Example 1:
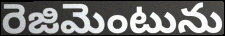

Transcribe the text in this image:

రెజిమెంటును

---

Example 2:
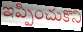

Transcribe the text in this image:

ఇప్పించుకొని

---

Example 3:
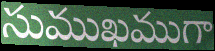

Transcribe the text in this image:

సుముఖముగా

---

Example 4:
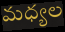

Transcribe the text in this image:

మధ్యల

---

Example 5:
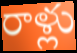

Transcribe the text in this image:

రాళ్లు